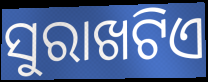
ସୁରାଖଟିଏ